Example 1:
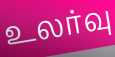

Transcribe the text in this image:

உலர்வு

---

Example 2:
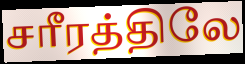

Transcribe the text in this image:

சரீரத்திலே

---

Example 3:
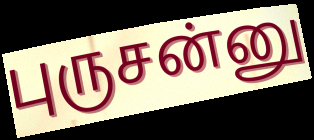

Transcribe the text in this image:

புருசன்னு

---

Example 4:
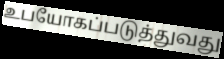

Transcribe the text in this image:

உபயோகப்படுத்துவது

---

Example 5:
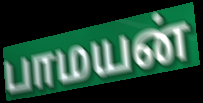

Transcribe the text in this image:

பாமயன்